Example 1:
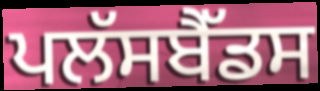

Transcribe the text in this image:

ਪਲੱਸਬੈੱਡਸ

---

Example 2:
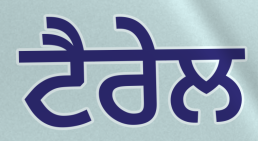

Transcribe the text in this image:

ਟੈਰੇਲ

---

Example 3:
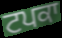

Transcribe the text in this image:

ਟਪਕਾ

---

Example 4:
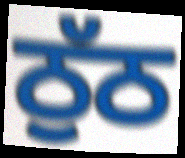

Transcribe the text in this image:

ਠੁੱਠ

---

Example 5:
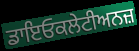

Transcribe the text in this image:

ਡਾਇਓਕਲੇਟੀਅਨਜ਼